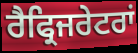
ਰੈਫ੍ਰਿਜਰੇਟਰਾਂ